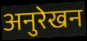
अनुरेखन